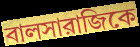
বালসারাজিকে